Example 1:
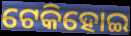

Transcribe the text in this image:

ଟେକିହୋଇ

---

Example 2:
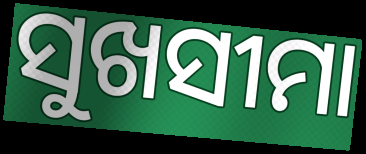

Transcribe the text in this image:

ସୁଖସୀମା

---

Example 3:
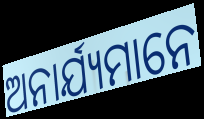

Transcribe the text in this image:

ଅନାର୍ଯ୍ୟମାନେ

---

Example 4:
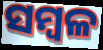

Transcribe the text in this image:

ସମ୍ବଳ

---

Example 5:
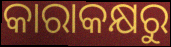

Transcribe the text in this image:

କାରାକକ୍ଷରୁ